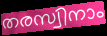
തരസ്വിനാം